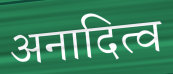
अनादित्व